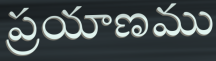
ప్రయాణము